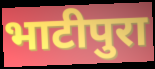
भाटीपुरा